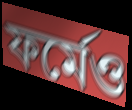
ফর্মেও